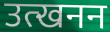
उत्‍खनन